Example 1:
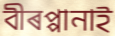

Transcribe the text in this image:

বীৰপ্পানাই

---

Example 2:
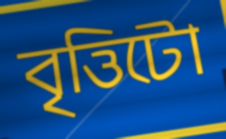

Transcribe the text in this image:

বৃত্তিটো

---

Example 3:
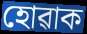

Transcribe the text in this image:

হোৱাক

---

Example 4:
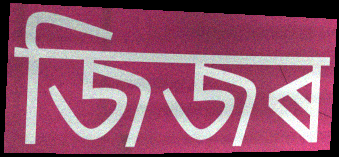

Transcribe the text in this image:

জিজৰ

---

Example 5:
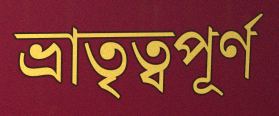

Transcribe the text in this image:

ভ্ৰাতৃত্বপূৰ্ণ